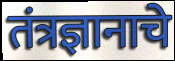
तंत्रज्ञानाचे